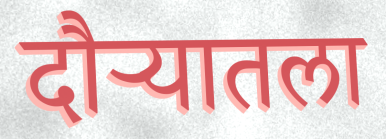
दौऱ्यातला